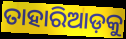
ତାହାରିଆଡ଼କୁ